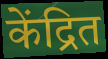
केंद्रित